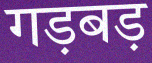
गड़बड़